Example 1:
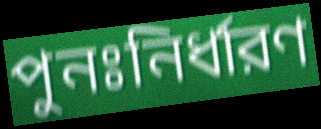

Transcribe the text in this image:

পুনঃনির্ধারণ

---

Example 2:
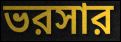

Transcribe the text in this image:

ভরসার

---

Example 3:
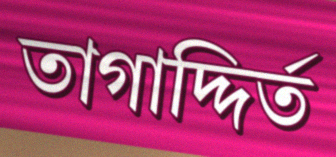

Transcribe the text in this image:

তাগাদ্দির্ত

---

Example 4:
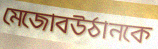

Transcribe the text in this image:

মেজোবউঠানকে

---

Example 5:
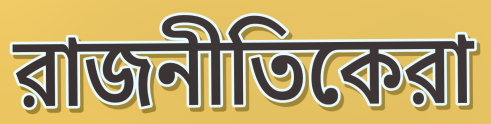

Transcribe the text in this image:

রাজনীতিকেরা